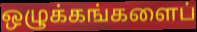
ஒழுக்கங்களைப்